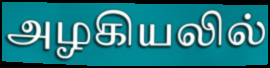
அழகியலில்